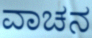
ವಾಚನ